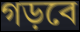
গড়বে